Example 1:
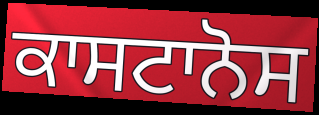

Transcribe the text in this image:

ਕਾਸਟਾਨੋਸ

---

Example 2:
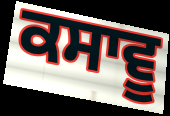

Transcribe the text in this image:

ਕਸਾਵੂ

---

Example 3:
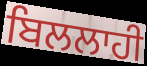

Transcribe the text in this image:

ਬਿਲਲਾਹੀ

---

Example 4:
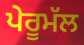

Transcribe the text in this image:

ਪੇਰੂਮੱਲ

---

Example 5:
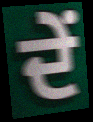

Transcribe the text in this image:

ਦੇਂ